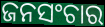
ଜନସଂଚାର